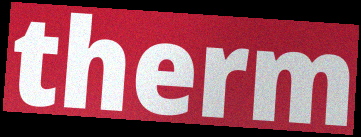
therm